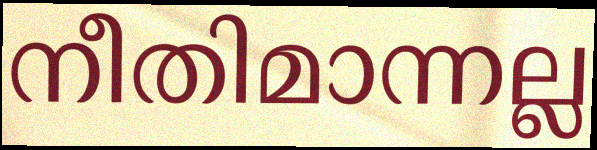
നീതിമാന്നല്ല